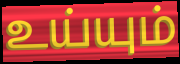
உய்யும்